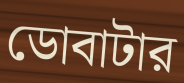
ডোবাটার